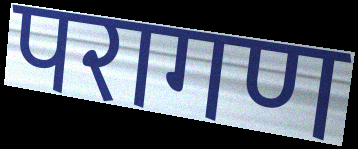
परागण